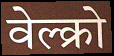
वेल्क्रो